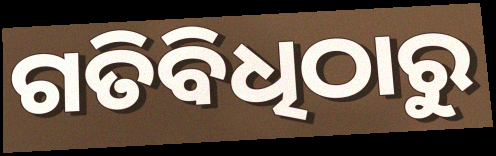
ଗତିବିଧିଠାରୁ